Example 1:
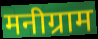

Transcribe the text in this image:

मनीग्राम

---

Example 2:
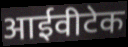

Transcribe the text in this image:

आईवीटेक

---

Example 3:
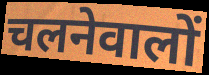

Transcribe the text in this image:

चलनेवालों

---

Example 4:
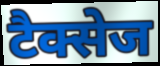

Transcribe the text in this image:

टैक्सेज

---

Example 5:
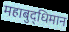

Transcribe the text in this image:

महाबुद्धिमान